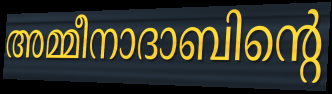
അമ്മീനാദാബിന്റെ